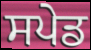
ਸਪੇਡ